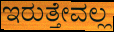
ಇರುತ್ತೇವಲ್ಲ